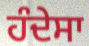
ਹੰਦੇਸਾ